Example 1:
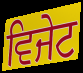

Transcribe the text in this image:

ਵਿਜੇਟ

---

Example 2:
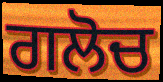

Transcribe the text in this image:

ਗਲੋਚ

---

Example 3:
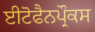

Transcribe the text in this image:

ਈਟੋਫੈਨਪ੍ਰੌਕਸ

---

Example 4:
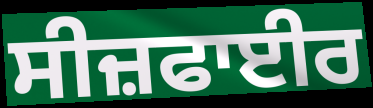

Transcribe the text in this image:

ਸੀਜ਼ਫਾਈਰ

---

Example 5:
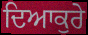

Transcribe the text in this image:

ਦਿਆਕੁਰੇ